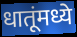
धातूंमध्ये